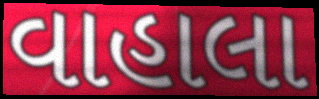
વાહાલા